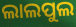
ଲାଲପୁଲ